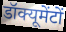
डॉक्यूमेंटों